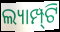
ଲ୍ୟାମ୍ପ୍‍ଟି